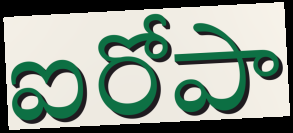
ఐరోపా